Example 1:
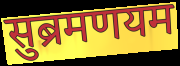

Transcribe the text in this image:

सुब्रमणयम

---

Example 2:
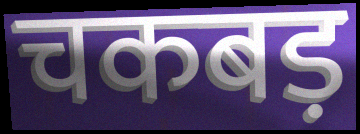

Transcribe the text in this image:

चकबड़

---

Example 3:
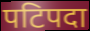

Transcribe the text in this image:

पटिपदा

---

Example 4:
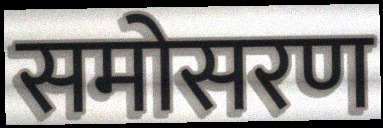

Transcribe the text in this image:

समोसरण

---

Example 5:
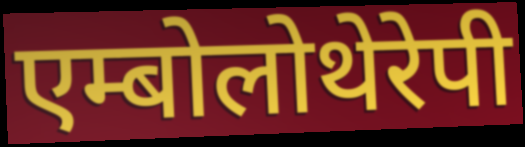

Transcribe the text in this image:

एम्बोलोथेरेपी